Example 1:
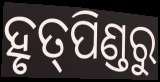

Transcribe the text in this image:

ହୃତ୍‌ପିଣ୍ଡରୁ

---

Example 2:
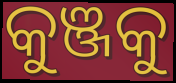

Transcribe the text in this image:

କୁଞ୍ଜକୁ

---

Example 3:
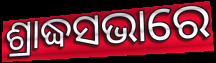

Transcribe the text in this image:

ଶ୍ରାଦ୍ଧସଭାରେ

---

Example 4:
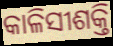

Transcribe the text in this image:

କାଳିସୀଶକ୍ତି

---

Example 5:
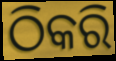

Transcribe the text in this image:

ଠିକରି